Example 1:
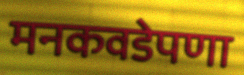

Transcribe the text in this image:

मनकवडेपणा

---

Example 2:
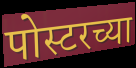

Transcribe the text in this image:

पोस्टरच्या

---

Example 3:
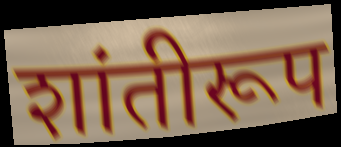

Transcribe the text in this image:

शांतीरूप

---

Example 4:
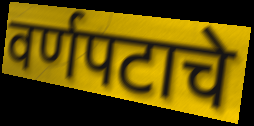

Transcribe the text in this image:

वर्णपटाचे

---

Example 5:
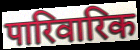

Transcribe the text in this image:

पारिवारिक